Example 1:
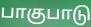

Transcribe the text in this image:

பாகுபாடு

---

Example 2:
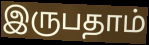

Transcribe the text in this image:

இருபதாம்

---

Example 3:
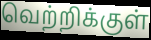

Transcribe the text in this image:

வெற்றிக்குள்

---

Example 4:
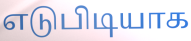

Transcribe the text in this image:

எடுபிடியாக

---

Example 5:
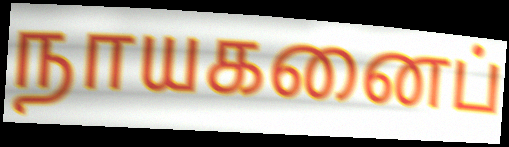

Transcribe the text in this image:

நாயகனைப்